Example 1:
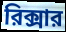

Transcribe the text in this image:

রিক্সার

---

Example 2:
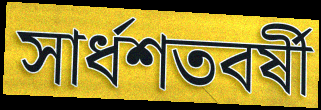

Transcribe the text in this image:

সার্ধশতবর্ষী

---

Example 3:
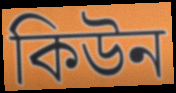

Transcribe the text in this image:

কিউন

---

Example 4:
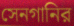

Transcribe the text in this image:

সেনগানির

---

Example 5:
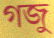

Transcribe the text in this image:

গজু